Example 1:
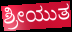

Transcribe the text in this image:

ಶ್ರೀಯುತ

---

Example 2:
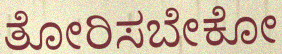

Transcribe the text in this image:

ತೋರಿಸಬೇಕೋ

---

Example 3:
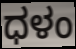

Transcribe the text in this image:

ಧಳಂ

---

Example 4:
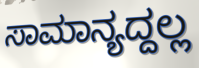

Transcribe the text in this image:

ಸಾಮಾನ್ಯದ್ದಲ್ಲ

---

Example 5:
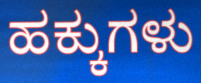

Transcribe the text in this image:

ಹಕ್ಕುಗಳು